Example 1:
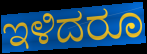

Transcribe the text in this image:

ಇಳಿದರೂ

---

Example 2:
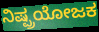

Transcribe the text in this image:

ನಿಷ್ಪ್ರಯೋಜಕ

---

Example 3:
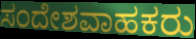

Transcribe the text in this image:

ಸಂದೇಶವಾಹಕರು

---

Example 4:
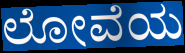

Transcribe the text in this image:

ಲೋವೆಯ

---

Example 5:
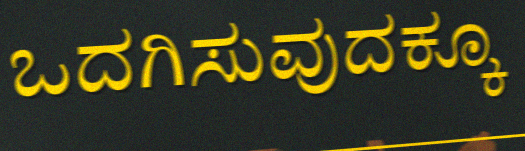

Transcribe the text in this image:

ಒದಗಿಸುವುದಕ್ಕೂ